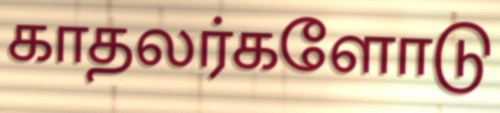
காதலர்களோடு